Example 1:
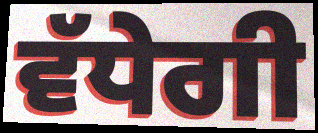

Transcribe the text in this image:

ਵੱਧੇਗੀ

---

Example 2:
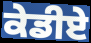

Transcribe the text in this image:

ਕੇਡੀਏ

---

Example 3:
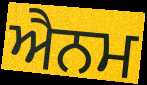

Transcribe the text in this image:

ਐਨਮ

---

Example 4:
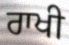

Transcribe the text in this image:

ਰਾਖੀ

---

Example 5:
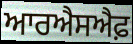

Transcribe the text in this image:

ਆਰਐਸਐਫ਼